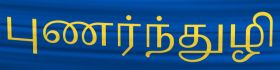
புணர்ந்துழி